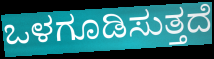
ಒಳಗೂಡಿಸುತ್ತದೆ